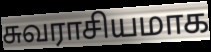
சுவராசியமாக